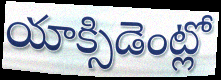
యాక్సిడెంట్లో